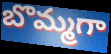
బొమ్మగా